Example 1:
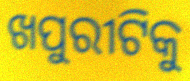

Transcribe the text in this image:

ଖପୁରୀଟିକୁ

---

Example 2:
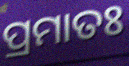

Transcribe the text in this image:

ପ୍ରମାତଃ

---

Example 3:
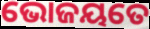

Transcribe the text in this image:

ଭୋଜୟତେ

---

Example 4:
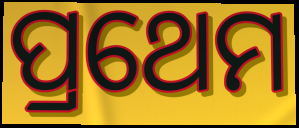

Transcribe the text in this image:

ପ୍ରଥେମ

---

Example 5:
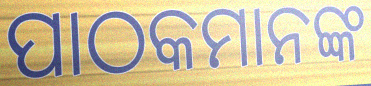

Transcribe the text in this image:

ପାଠକମାନଙ୍କ